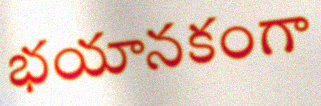
భయానకంగా